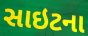
સાઇટના